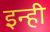
इन्ही